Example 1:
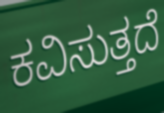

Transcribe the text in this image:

ಕವಿಸುತ್ತದೆ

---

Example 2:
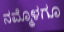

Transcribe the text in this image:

ನಮ್ಮೊಳಗೂ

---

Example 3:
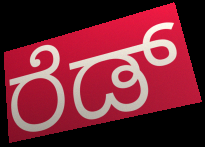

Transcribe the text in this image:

ರೆಡ್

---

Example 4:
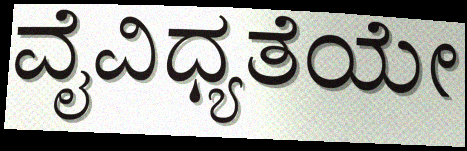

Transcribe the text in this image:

ವೈವಿಧ್ಯತೆಯೇ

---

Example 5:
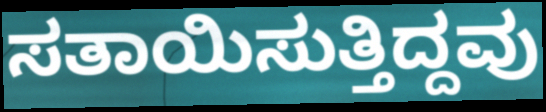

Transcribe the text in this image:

ಸತಾಯಿಸುತ್ತಿದ್ದವು